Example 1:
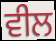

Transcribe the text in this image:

ਵੀਲ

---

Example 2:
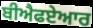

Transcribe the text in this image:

ਬੀਐਫਏਆਰ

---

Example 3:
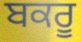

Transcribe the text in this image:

ਬਕਰੂ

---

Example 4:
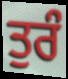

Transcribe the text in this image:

ਤੁਰੰ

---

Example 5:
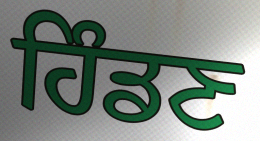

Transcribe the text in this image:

ਹਿੰਡਣ